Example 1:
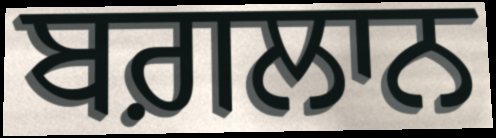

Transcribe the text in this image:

ਬਗ਼ਲਾਨ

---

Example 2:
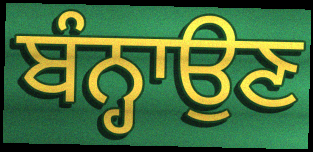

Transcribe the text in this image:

ਬੰਨ੍ਹਾਉਣ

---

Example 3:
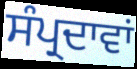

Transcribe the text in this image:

ਸੰਪ੍ਰਦਾਵਾਂ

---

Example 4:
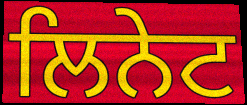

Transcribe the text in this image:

ਲਿਨੇਟ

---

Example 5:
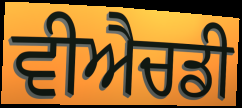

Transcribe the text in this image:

ਵੀਐਚਡੀ